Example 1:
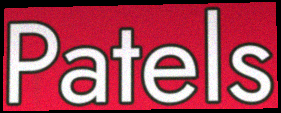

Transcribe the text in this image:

Patels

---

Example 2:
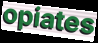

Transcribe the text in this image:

opiates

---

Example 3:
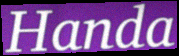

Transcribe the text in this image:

Handa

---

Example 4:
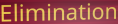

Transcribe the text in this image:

Elimination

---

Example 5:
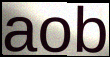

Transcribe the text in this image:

aob